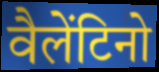
वैलेंटिनो